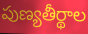
పుణ్యతీర్థాల